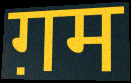
ग़म